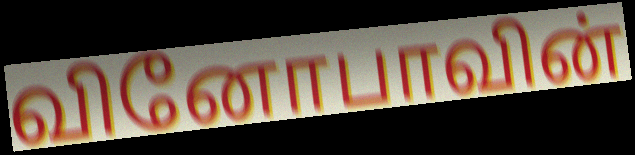
வினோபாவின்